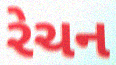
રેચન